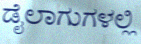
ಡೈಲಾಗುಗಳಲ್ಲಿ